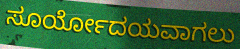
ಸೂರ್ಯೋದಯವಾಗಲು